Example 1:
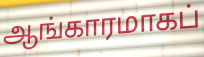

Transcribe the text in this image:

ஆங்காரமாகப்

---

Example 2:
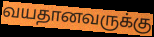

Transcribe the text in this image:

வயதானவருக்கு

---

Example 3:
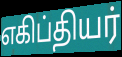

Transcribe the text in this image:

எகிப்தியர்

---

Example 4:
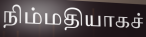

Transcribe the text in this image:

நிம்மதியாகச்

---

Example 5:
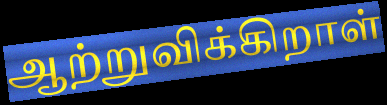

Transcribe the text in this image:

ஆற்றுவிக்கிறாள்